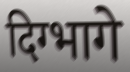
दिग्भागे